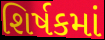
શિર્ષકમાં